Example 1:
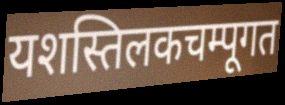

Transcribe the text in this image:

यशस्तिलकचम्पूगत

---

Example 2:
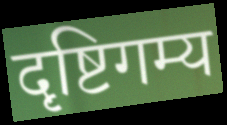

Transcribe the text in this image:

दृष्टिगम्य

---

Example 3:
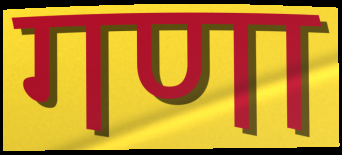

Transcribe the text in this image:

गणा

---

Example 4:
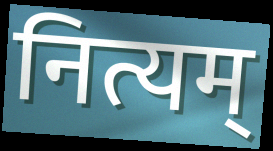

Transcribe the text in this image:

नित्यम्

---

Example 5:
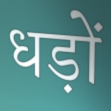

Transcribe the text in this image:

धड़ों